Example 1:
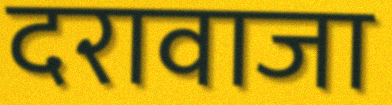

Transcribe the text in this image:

दरावाजा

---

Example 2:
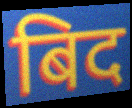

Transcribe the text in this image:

बिद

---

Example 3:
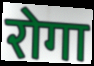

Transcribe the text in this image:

रोगा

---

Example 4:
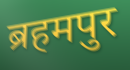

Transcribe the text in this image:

ब्रहमपुर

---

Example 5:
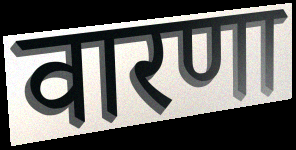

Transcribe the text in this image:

वारणा